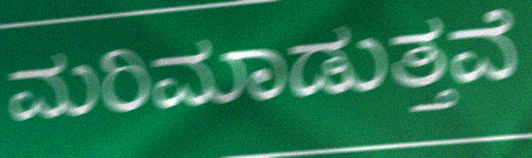
ಮರಿಮಾಡುತ್ತವೆ